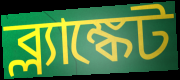
ব্ল্যাঙ্কেট